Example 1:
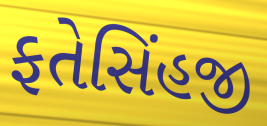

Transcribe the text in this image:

ફતેસિંહજી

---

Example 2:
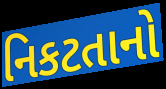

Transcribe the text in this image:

નિકટતાનો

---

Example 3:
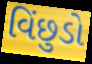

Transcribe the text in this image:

વિંછુડો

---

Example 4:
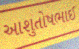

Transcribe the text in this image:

આશુતોષભાઈ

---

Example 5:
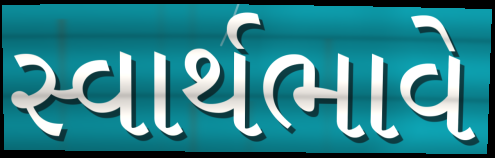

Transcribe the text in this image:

સ્વાર્થભાવે